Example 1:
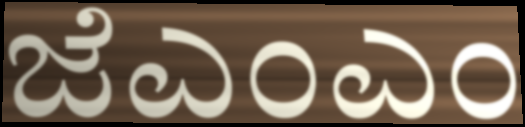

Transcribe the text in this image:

ಜೆಎಂಎಂ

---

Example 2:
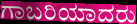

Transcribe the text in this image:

ಗಾಬರಿಯಾದರು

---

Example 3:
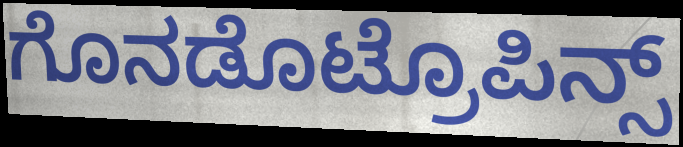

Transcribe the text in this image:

ಗೊನಡೊಟ್ರೊಪಿನ್ಸ್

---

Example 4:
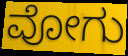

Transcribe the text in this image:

ವೋಗು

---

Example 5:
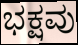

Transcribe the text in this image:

ಭಕ್ಷವು